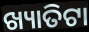
ଖ୍ୟାତିଟା